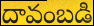
దావంబడి